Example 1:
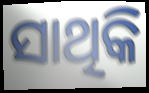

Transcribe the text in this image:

ସାଥିକି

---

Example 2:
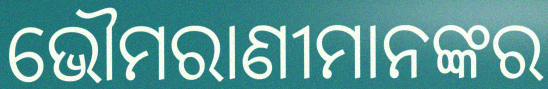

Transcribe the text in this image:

ଭୌମରାଣୀମାନଙ୍କର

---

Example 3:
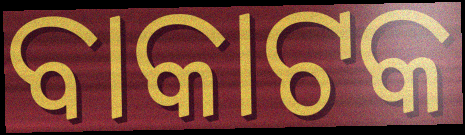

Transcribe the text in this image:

ବାକାଟକ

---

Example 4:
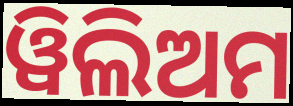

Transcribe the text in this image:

ୱିଲିଅମ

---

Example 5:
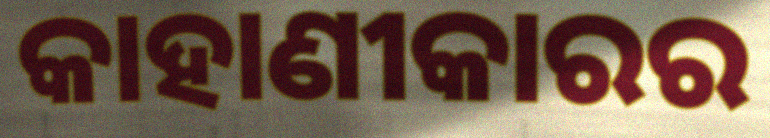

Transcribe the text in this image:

କାହାଣୀକାରର